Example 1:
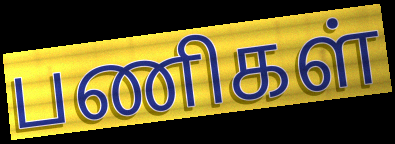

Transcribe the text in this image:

பணிகள்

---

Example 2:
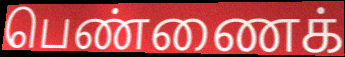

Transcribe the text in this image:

பெண்ணைக்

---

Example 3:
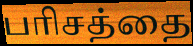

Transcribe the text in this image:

பரிசத்தை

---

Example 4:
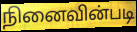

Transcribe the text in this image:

நினைவின்படி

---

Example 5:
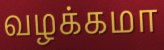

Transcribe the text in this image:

வழக்கமா